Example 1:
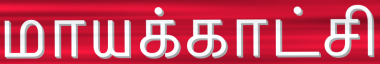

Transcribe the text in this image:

மாயக்காட்சி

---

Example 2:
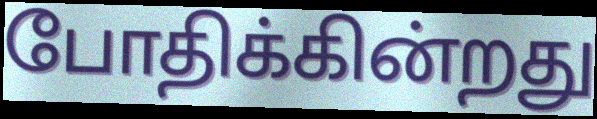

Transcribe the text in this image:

போதிக்கின்றது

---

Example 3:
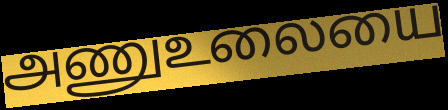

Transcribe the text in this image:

அணுஉலையை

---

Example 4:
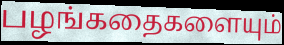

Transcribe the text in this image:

பழங்கதைகளையும்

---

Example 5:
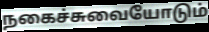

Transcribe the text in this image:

நகைச்சுவையோடும்